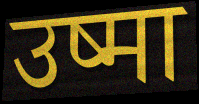
उष्मा